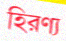
হিরণ্য